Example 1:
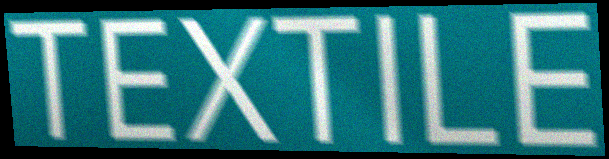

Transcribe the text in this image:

TEXTILE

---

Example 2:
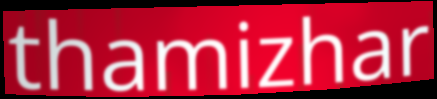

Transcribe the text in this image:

thamizhar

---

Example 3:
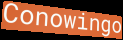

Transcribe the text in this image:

Conowingo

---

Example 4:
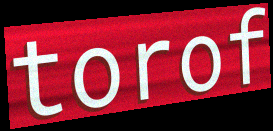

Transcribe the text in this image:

torof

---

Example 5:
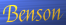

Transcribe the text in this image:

Benson